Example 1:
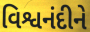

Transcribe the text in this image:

વિશ્વનંદીને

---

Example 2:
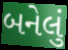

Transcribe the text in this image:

બનેલું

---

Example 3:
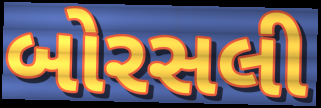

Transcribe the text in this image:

બોરસલી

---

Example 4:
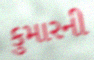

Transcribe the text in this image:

કુમારની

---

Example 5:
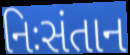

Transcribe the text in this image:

નિઃસંતાન